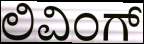
ಲಿವಿಂಗ್